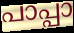
പാപ്പാ